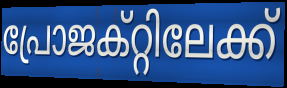
പ്രോജക്റ്റിലേക്ക്